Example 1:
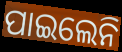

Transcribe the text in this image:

ପାଇଲେନି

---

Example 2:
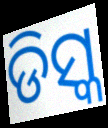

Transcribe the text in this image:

ଡିସ୍କ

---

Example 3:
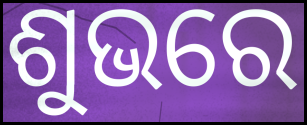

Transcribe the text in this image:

ଶୁଭରେ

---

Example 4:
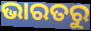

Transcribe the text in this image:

ଭାରତରୁ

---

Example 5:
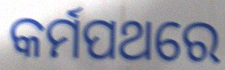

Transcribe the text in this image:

କର୍ମପଥରେ